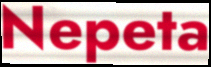
Nepeta